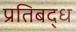
प्रतिबद्ध